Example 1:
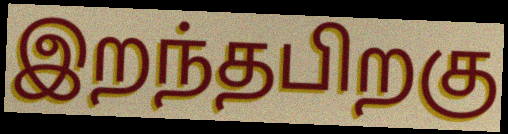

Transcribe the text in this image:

இறந்தபிறகு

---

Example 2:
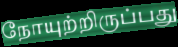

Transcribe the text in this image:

நோயுற்றிருப்பது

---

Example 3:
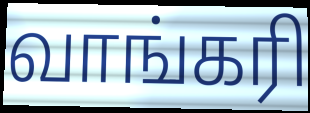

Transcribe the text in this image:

வாங்கரி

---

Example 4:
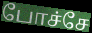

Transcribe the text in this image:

போச்சே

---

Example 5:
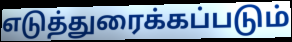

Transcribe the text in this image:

எடுத்துரைக்கப்படும்